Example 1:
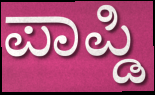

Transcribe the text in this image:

ಪಾಪ್ಡಿ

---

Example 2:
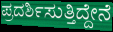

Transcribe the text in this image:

ಪ್ರದರ್ಶಿಸುತ್ತಿದ್ದೇನೆ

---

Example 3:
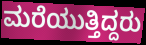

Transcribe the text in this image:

ಮರೆಯುತ್ತಿದ್ದರು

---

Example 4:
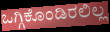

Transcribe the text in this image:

ಒಗ್ಗಿಕೊಂಡಿರಲಿಲ್ಲ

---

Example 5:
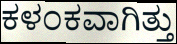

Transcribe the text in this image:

ಕಳಂಕವಾಗಿತ್ತು